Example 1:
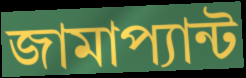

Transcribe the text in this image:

জামাপ্যান্ট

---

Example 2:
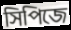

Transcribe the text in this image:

সিপিজে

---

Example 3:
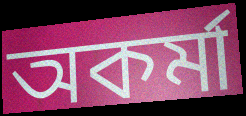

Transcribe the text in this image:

অকর্মা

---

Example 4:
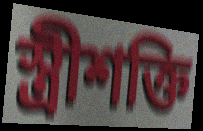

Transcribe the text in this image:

স্ত্রীশক্তি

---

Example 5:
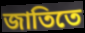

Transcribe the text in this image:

জাতিতে